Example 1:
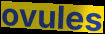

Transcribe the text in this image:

ovules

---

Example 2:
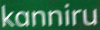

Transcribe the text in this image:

kanniru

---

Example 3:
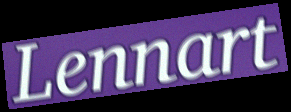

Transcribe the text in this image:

Lennart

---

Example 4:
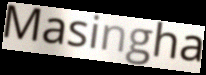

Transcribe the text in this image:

Masingha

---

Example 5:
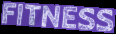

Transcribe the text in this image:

FITNESS